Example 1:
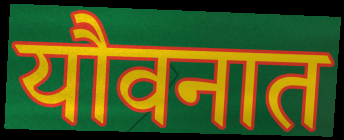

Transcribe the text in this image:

यौवनात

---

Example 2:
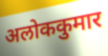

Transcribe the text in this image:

अलोककुमार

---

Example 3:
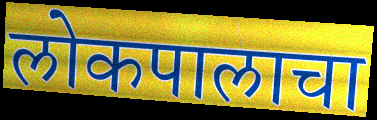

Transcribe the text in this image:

लोकपालाचा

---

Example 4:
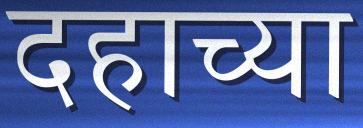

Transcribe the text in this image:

दहाच्या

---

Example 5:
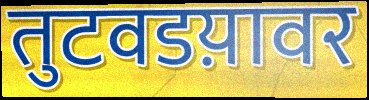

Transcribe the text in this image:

तुटवडय़ावर